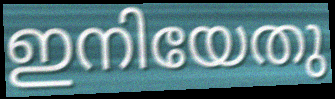
ഇനിയേതു